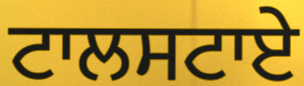
ਟਾਲਸਟਾਏ